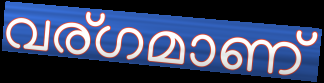
വര്ഗമാണ്